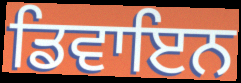
ਡਿਵਾਇਨ